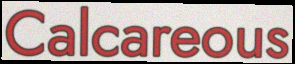
Calcareous